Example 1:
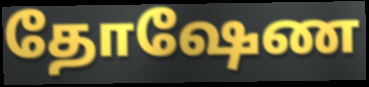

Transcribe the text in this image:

தோஷேண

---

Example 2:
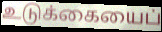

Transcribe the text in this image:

உடுக்கையைப்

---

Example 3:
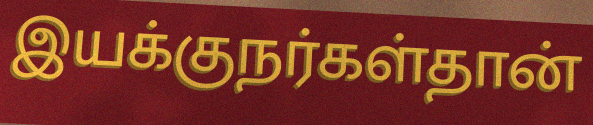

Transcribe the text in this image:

இயக்குநர்கள்தான்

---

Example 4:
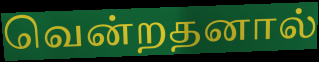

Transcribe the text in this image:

வென்றதனால்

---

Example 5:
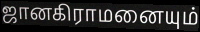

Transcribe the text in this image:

ஜானகிராமனையும்